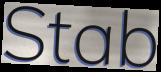
Stab